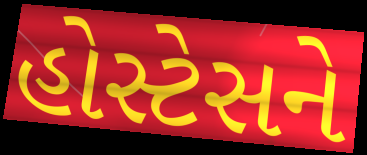
હોસ્ટેસને